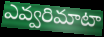
ఎవ్వరిమాటా